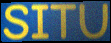
SITU